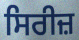
ਸਿਰੀਜ਼